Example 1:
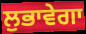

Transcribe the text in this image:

ਲੁਭਾਵੇਗਾ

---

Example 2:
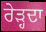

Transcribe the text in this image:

ਰੇੜ੍ਹਦਾ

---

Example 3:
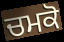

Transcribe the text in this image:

ਚਮਕੋ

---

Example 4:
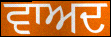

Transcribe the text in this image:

ਵਾਅਦ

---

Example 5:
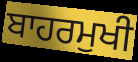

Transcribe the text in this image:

ਬਾਹਰਮੁਖੀ